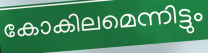
കോകിലമെന്നിട്ടും